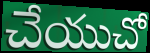
చేయుచో